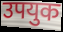
उपयुक